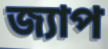
জ্যাপ